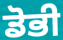
ਡੋਭੀ